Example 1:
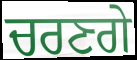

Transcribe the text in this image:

ਚਰਣਗੇ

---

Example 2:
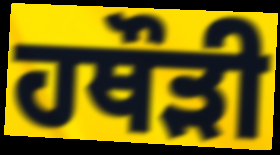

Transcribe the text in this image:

ਹਥੌੜੀ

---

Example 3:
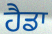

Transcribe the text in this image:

ਹੈਡਾ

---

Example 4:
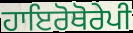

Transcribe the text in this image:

ਹਾਇਰੋਥੋਰੇਪੀ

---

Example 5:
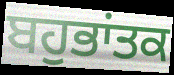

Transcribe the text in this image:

ਬਹੁਭਾਂਤਕ